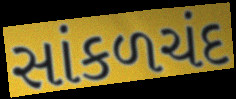
સાંકળચંદ